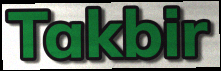
Takbir